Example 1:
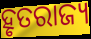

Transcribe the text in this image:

ହୃତରାଜ୍ୟ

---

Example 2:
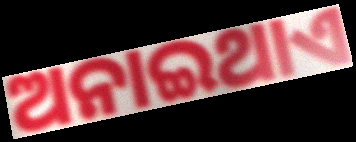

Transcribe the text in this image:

ଅନାଇଥାଏ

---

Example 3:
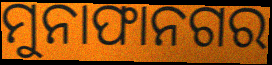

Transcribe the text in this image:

ମୁନାଫାନଗର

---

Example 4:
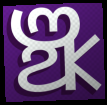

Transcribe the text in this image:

ଞ୍ଝ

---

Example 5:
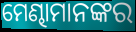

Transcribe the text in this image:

ମେଣ୍ଢାମାନଙ୍କର